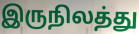
இருநிலத்து